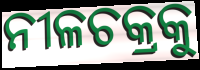
ନୀଳଚକ୍ରକୁ